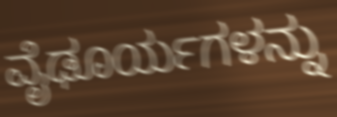
ವೈಢೂರ್ಯಗಳನ್ನು